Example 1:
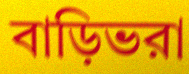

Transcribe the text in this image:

বাড়িভরা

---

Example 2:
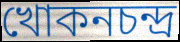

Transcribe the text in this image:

খোকনচন্দ্র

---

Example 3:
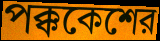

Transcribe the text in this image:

পক্ককেশের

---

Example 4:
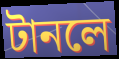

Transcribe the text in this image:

টানলে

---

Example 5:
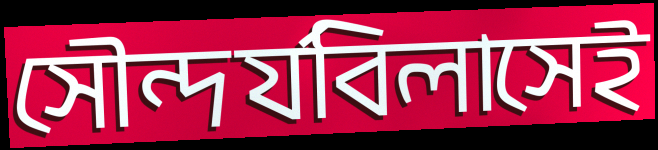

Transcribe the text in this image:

সৌন্দর্যবিলাসেই